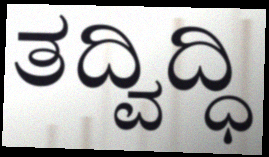
ತದ್ವಿದ್ಧಿ